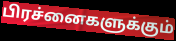
பிரச்னைகளுக்கும்